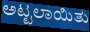
ಅಟ್ಟಲಾಯಿತು